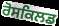
ਰੋਸਕਿਲਡ